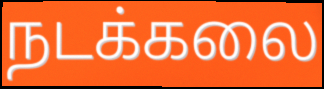
நடக்கலை